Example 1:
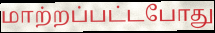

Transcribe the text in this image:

மாற்றப்பட்டபோது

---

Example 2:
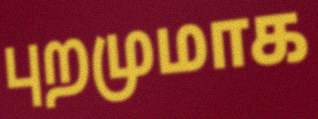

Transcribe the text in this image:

புறமுமாக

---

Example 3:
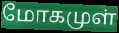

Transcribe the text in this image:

மோகமுள்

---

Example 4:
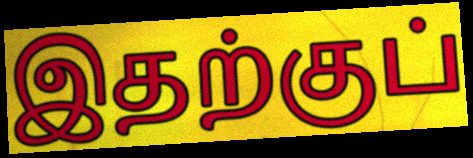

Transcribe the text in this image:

இதற்குப்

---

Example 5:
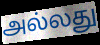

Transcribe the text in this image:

அல்லது